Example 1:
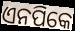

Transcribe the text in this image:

ଏନପିକେ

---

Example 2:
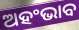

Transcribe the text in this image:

ଅହଂଭାବ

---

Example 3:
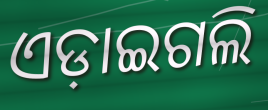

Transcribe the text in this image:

ଏଡ଼ାଇଗଲି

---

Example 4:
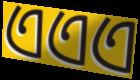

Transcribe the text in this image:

ଏଏଏ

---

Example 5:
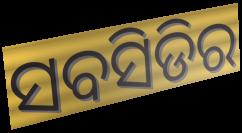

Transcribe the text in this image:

ସବସିଡିର